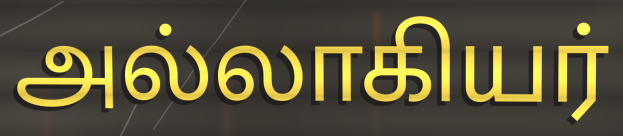
அல்லாகியர்